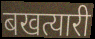
बखत्यारी